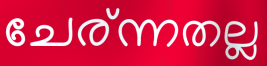
ചേര്ന്നതല്ല